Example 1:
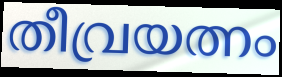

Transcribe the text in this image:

തീവ്രയത്നം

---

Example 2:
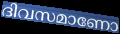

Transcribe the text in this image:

ദിവസമാണോ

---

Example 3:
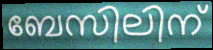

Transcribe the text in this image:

ബേസിലിന്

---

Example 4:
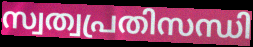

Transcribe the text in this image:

സ്വത്വപ്രതിസന്ധി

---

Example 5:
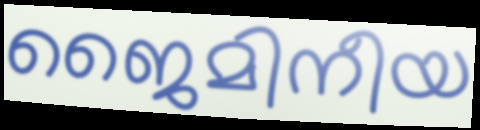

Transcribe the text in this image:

ജൈമിനീയ